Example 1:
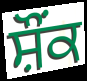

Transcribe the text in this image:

ਸ਼ੌੰਕ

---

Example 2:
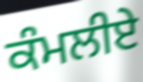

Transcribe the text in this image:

ਕੰਮਲੀਏ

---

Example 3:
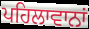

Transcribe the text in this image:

ਪਹਿਲਾਵਾਨਾਂ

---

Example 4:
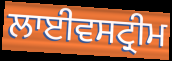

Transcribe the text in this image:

ਲਾਈਵਸਟ੍ਰੀਮ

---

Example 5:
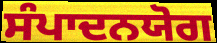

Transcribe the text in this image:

ਸੰਪਾਦਨਯੋਗ